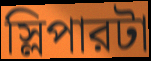
স্লিপারটা